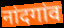
नांदगांव